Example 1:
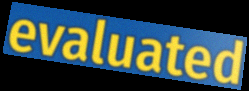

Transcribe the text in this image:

evaluated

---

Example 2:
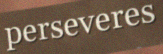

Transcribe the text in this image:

perseveres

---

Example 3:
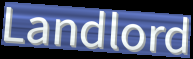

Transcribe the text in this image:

Landlord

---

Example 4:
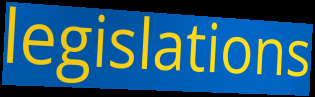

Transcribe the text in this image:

legislations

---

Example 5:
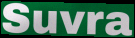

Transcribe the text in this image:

Suvra